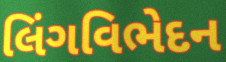
લિંગવિભેદન